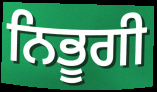
ਨਿਭੂਗੀ